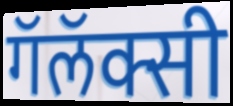
गॅलॅक्सी